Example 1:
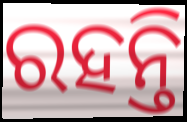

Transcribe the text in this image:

ରହନ୍ତି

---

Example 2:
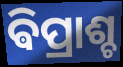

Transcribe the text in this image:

ଵିପ୍ରାଶ୍ଚ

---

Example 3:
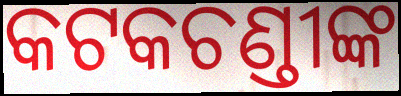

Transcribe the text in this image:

କଟକଚଣ୍ଡୀଙ୍କ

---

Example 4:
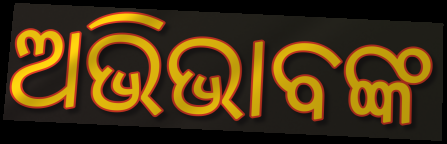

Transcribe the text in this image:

ଅଭିଭାବଙ୍କ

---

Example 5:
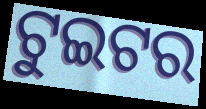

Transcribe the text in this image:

ଟୁଇଟର